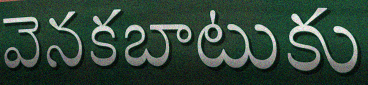
వెనకబాటుకు